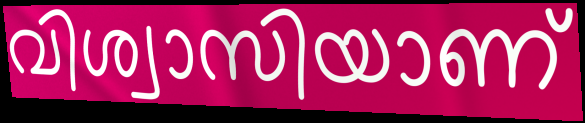
വിശ്വാസിയാണ്